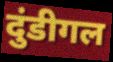
दुंडीगल